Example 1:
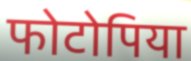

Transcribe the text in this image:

फोटोपिया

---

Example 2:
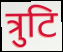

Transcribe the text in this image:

त्रुटि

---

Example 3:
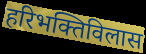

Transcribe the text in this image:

हरिभक्तिविलास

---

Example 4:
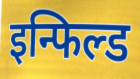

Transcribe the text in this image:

इन्फिल्ड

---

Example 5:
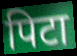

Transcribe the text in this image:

पिटा